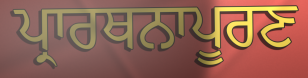
ਪ੍ਰਾਰਥਨਾਪੂਰਣ